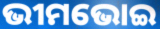
ଭୀମଭୋଇ